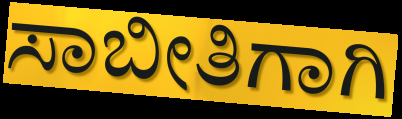
ಸಾಬೀತಿಗಾಗಿ